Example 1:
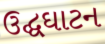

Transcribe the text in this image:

ઉદ્ઘઘાટન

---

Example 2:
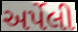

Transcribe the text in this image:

અર્પેલી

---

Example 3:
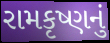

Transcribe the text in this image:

રામકૃષ્ણનું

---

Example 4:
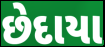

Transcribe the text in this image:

છેદાયા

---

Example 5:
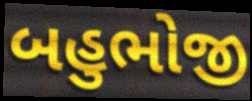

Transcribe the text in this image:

બહુભોજી